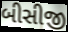
બીસીજી